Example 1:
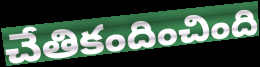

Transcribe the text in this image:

చేతికందించింది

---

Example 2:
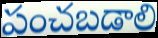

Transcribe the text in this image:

పంచబడాలి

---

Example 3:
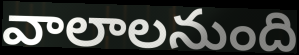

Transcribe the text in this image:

వాలాలనుంది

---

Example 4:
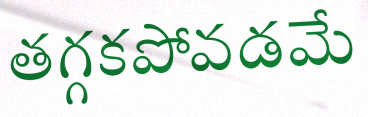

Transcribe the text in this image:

తగ్గకపోవడమే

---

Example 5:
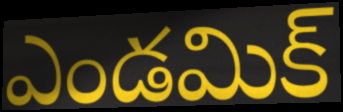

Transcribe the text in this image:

ఎండమిక్